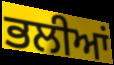
ਭਲੀਆਂ